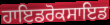
ਹਾਇਡਰੋਕਸਾਇਡ